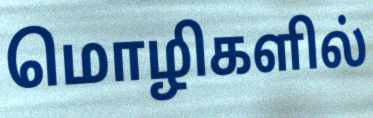
மொழிகளில்